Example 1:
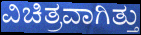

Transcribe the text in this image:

ವಿಚಿತ್ರವಾಗಿತ್ತು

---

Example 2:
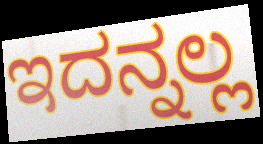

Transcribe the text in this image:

ಇದನ್ನಲ್ಲ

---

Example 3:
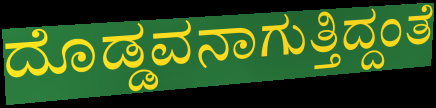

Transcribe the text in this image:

ದೊಡ್ಡವನಾಗುತ್ತಿದ್ದಂತೆ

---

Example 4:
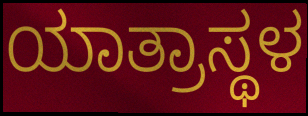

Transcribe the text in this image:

ಯಾತ್ರಾಸ್ಥಳ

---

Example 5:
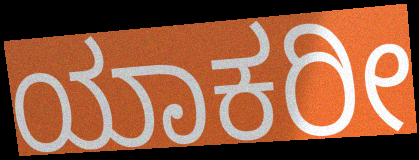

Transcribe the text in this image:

ಯಾಕರೀ